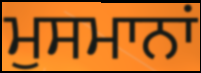
ਮੁਸਮਾਨਾਂ